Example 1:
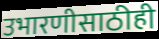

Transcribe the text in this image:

उभारणीसाठीही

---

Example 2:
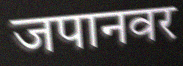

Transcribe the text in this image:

जपानवर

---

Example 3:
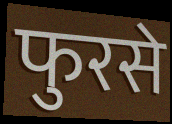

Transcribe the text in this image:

फुरसे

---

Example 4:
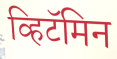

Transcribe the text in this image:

व्हिटॅमिन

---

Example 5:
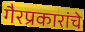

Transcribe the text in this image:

गैरप्रकारांचे